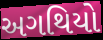
અગથિયો